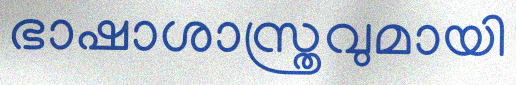
ഭാഷാശാസ്ത്രവുമായി